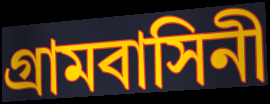
গ্রামবাসিনী